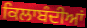
ਕਿਲਾਬੰਦੀਆਂ